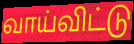
வாய்விட்டு